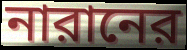
নারানের